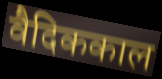
वैदिककाल